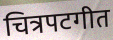
चित्रपटगीत